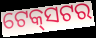
ଟେକ୍‌ସଟର